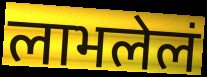
लाभलेलं